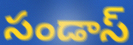
సండాస్